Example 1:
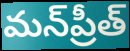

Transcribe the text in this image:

మన్‌ప్రీత్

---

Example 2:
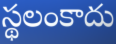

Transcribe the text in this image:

స్థలంకాదు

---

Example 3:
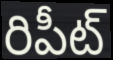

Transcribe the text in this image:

రిపీట్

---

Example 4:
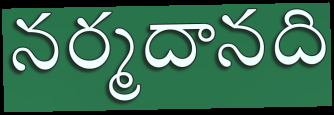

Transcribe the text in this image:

నర్మదానది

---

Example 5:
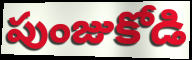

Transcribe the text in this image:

పుంజుకోడి